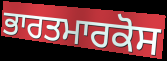
ਭਾਰਤਮਾਰਕੋਸ